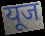
यूज